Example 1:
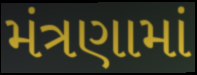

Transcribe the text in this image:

મંત્રણામાં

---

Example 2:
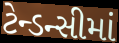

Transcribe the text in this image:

ટેન્ડન્સીમાં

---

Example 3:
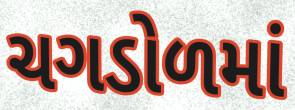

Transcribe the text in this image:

ચગડોળમાં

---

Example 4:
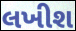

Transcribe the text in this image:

લખીશ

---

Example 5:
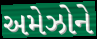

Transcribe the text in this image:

અમેઝોને